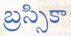
బ్రస్సికా